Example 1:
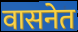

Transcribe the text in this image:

वासनेत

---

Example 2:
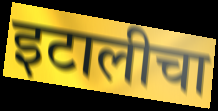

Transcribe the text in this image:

इटालीचा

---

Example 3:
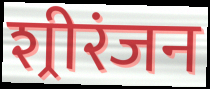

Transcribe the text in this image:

श्रीरंजन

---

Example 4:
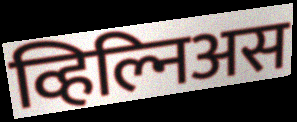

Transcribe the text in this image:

व्हिल्निअस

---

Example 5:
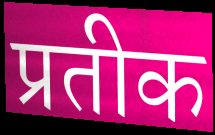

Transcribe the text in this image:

प्रतीक